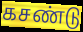
கசண்டு